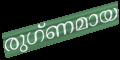
രുഗ്ണമായ